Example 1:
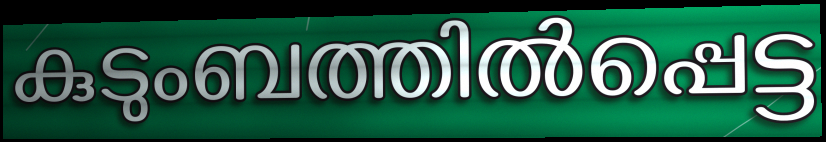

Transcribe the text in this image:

കുടുംബത്തിൽപ്പെട്ട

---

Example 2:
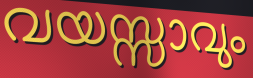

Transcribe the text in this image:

വയസ്സാവും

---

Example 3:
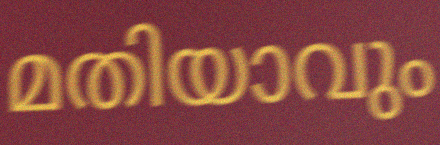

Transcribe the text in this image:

മതിയാവും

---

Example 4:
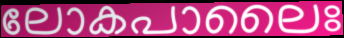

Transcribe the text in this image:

ലോകപാലൈഃ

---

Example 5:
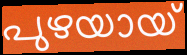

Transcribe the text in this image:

പുഴയായ്